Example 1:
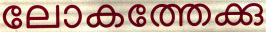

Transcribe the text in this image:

ലോകത്തേക്കു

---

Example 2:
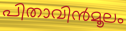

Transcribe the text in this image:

പിതാവിൻമൂലം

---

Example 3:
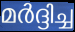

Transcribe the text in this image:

മർദ്ദിച്ച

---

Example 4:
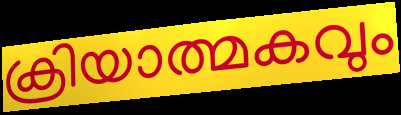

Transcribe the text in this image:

ക്രിയാത്മകവും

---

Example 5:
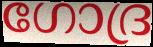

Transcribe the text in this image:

ഗോദ്ര